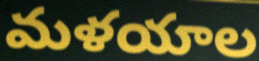
మళయాల